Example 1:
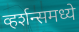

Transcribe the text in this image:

व्हर्शन्समध्ये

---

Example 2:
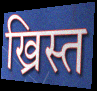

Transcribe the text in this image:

ख्रिस्त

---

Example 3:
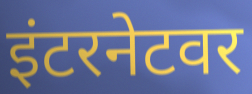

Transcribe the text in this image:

इंटरनेटवर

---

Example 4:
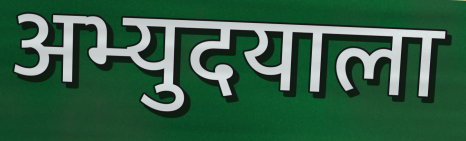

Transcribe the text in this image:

अभ्युदयाला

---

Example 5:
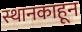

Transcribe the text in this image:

स्थानकाहून